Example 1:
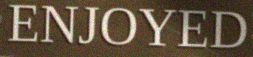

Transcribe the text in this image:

ENJOYED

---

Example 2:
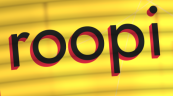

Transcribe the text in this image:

roopi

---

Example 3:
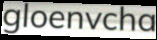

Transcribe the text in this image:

gloenvcha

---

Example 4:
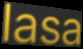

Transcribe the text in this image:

lasa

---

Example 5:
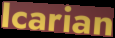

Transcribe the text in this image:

Icarian